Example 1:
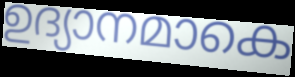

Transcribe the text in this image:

ഉദ്യാനമാകെ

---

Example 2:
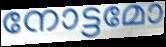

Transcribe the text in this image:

നോട്ടമോ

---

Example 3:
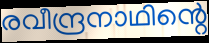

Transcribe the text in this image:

രവീന്ദ്രനാഥിന്റെ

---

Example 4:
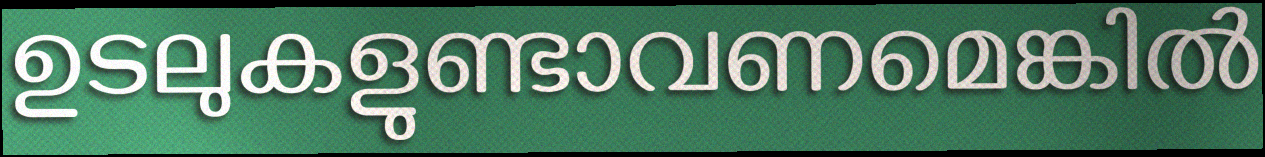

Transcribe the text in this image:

ഉടലുകളുണ്ടാവണമെങ്കിൽ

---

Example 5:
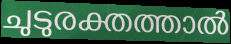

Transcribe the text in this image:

ചുടുരക്തത്താൽ